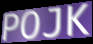
POJK